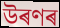
উৰণৰ